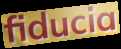
fiducia